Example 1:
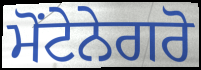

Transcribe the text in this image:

ਮੋਂਟੇਨੇਗਰੋ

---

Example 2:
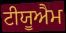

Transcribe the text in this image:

ਟੀਯੂਐਮ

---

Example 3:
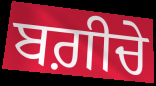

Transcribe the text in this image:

ਬਗ਼ੀਚੇ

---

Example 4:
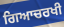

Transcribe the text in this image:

ਗਿਆਚਰਖੀ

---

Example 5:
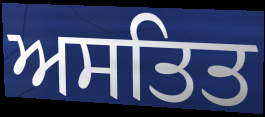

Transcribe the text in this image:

ਅਸਤਿਤ